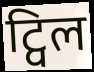
ट्विल